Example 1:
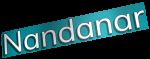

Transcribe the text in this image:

Nandanar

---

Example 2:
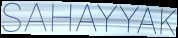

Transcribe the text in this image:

SAHAYYAK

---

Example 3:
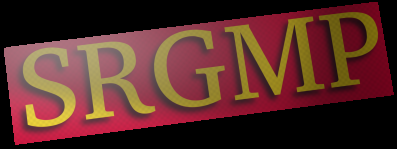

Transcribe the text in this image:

SRGMP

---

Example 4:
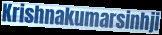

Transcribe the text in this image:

Krishnakumarsinhji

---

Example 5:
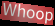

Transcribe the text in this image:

Whoop